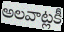
అలవాట్లకీ